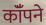
कॉँपने